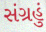
સંગ્રહું